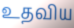
உதவிய